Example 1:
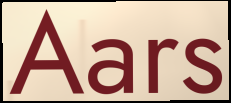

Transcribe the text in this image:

Aars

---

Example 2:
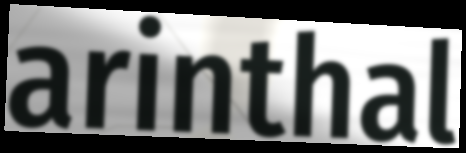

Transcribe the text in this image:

arinthal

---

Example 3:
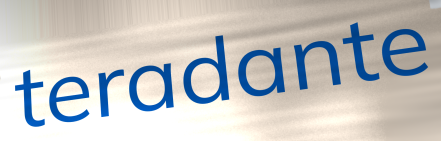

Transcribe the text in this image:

teradante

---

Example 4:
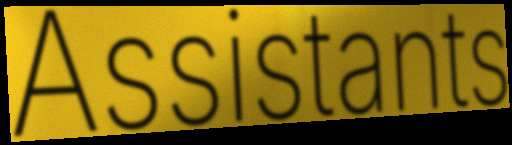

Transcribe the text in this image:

Assistants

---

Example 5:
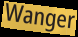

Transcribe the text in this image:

Wanger